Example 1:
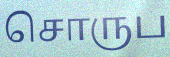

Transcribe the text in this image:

சொருப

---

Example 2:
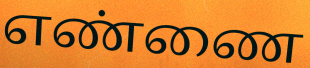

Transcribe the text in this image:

எண்ணை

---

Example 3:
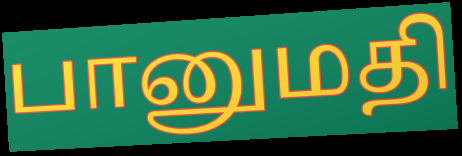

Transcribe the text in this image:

பானுமதி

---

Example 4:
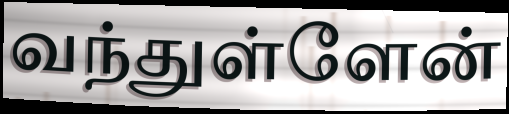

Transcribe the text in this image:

வந்துள்ளேன்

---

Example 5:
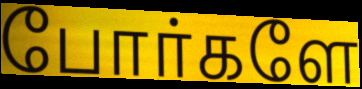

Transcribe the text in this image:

போர்களே